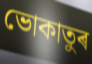
ভোকাতুৰ